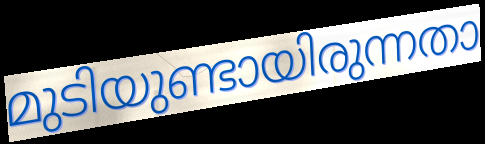
മുടിയുണ്ടായിരുന്നതാ